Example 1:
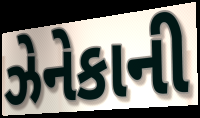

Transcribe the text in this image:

ઝેનેકાની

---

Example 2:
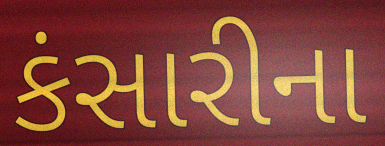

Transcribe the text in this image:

કંસારીના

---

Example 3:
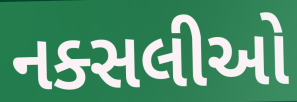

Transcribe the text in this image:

નક્સલીઓ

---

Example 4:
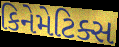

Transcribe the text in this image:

કિનેમેટિક્સ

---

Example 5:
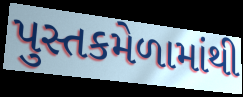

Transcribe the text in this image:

પુસ્તકમેળામાંથી